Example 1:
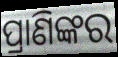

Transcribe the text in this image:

ପ୍ରାଣିଙ୍କର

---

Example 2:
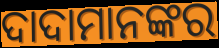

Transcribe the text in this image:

ଦାଦାମାନଙ୍କର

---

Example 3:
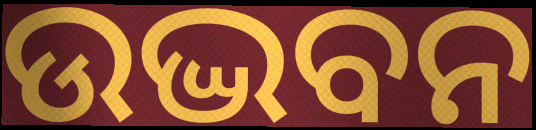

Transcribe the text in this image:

ଉଦ୍ଭବନ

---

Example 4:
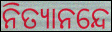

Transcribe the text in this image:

ନିତ୍ୟାନନ୍ଦେ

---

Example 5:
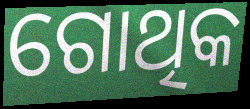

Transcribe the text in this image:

ଗୋଥିକ